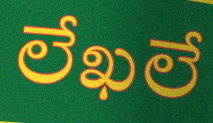
లేఖలే